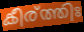
കീര്ത്തിഃ